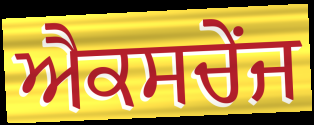
ਐਕਸਚੇਂਜ